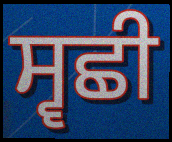
ਸ੍ਵਛੀ